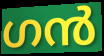
ഗൻ